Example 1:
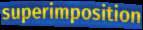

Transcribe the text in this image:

superimposition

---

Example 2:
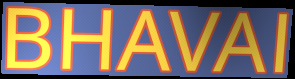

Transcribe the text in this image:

BHAVAI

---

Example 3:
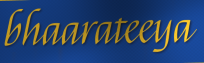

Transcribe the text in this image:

bhaarateeya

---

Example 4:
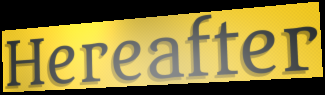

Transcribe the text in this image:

Hereafter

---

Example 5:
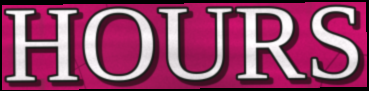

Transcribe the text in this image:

HOURS